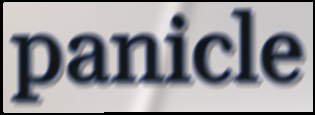
panicle